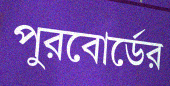
পুরবোর্ডের